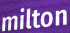
milton